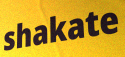
shakate